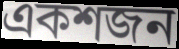
একশজন